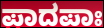
ಪಾದಪಾಃ